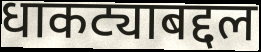
धाकट्याबद्दल